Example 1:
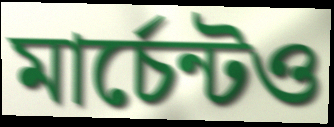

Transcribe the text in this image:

মার্চেন্টও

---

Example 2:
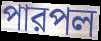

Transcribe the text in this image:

পারপল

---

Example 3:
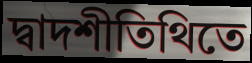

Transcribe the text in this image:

দ্বাদশীতিথিতে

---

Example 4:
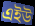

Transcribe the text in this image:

এইউ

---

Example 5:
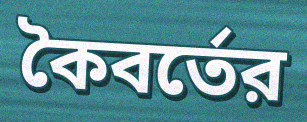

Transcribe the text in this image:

কৈবর্তের